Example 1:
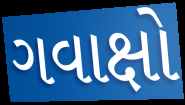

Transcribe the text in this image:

ગવાક્ષો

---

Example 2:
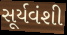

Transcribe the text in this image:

સૂર્યવંશી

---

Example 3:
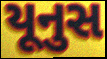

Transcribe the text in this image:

યૂનુસ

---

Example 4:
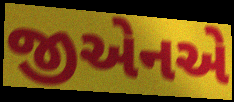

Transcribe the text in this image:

જીએનએ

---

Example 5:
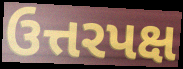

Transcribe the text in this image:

ઉત્તરપક્ષ